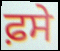
ਫ਼ਸੇ